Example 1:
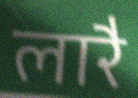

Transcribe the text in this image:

लारै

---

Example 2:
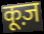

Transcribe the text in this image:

कूज़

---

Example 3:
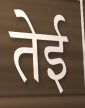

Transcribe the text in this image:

तेई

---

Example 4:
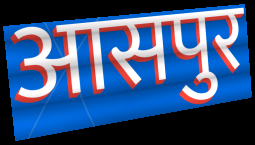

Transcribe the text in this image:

आसपुर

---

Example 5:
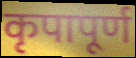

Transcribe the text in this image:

कृपापूर्ण